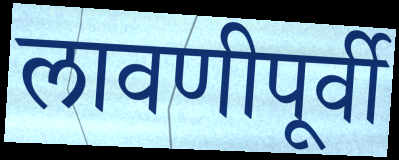
लावणीपूर्वी